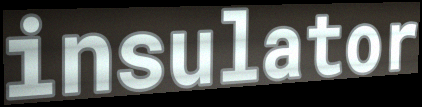
insulator